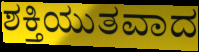
ಶಕ್ತಿಯುತವಾದ